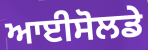
ਆਈਸੋਲਡੇ